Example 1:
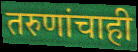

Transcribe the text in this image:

तरुणांचाही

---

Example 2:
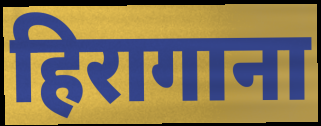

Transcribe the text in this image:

हिरागाना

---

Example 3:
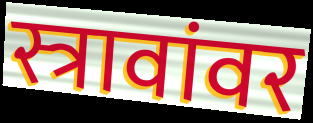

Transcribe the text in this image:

स्त्रावांवर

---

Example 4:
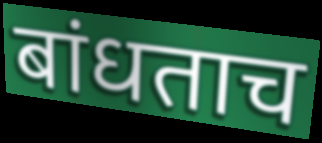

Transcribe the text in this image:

बांधताच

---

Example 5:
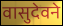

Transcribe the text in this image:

वासुदेवने